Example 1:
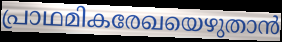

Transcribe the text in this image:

പ്രാഥമികരേഖയെഴുതാൻ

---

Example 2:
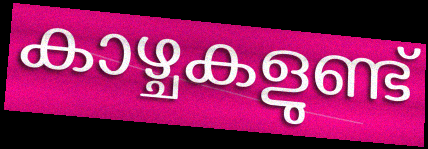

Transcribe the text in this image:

കാഴ്ചകളുണ്ട്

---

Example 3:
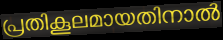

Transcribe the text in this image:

പ്രതികൂലമായതിനാൽ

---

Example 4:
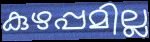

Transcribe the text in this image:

കുഴപ്പമില്ല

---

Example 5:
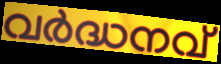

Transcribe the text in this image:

വർദ്ധനവ്